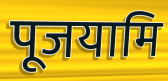
पूजयामि